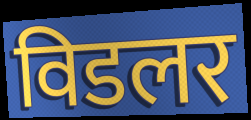
विडलर